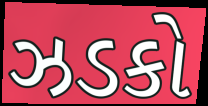
ઝડકો